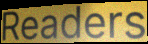
Readers